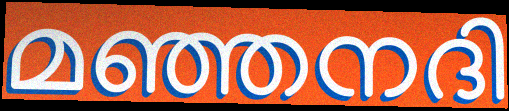
മഞ്ഞനദി